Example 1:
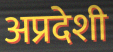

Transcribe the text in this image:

अप्रदेशी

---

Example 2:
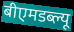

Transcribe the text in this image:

बीएमडब्ल्यू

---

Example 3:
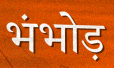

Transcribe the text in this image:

भंभोड़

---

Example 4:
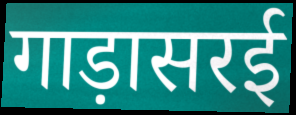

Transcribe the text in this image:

गाड़ासरई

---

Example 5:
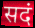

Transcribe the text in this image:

सदं